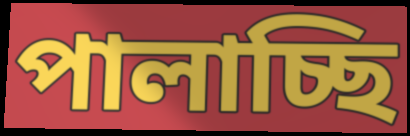
পালাচ্ছি